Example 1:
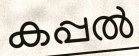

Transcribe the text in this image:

കപ്പൽ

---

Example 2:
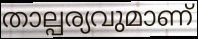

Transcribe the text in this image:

താല്പര്യവുമാണ്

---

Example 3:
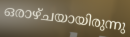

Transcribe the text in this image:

ഒരാഴ്ചയായിരുന്നു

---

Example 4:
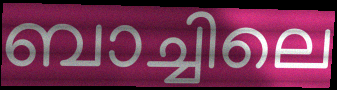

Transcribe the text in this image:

ബാച്ചിലെ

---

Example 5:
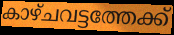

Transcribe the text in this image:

കാഴ്ചവട്ടത്തേക്ക്